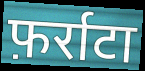
फ़र्राटा